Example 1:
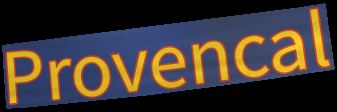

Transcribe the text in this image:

Provencal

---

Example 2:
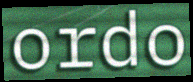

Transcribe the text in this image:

ordo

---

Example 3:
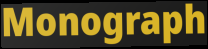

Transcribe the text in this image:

Monograph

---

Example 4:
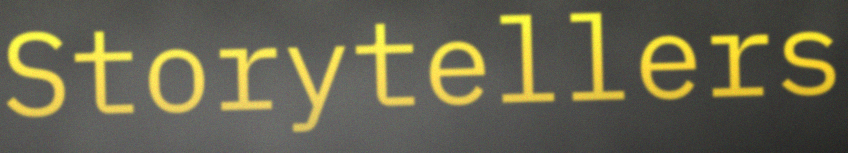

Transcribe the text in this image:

Storytellers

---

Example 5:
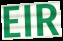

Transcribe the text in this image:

EIR